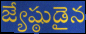
జ్యేష్ఠుడైన